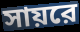
সায়রে